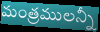
మంత్రములన్నీ